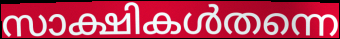
സാക്ഷികൾതന്നെ